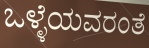
ಒಳ್ಳೆಯವರಂತೆ